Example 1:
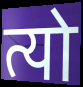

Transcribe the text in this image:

त्यो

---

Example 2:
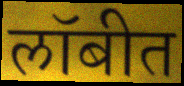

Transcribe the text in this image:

लॉबीत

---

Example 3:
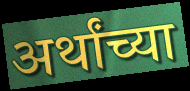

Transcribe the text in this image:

अर्थांच्या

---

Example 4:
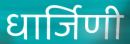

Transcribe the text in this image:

धार्जिणी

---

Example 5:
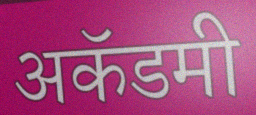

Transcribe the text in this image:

अकॅडमी